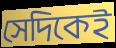
সেদিকেই